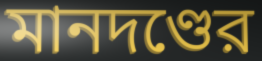
মানদণ্ডের